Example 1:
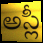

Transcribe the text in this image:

అస్లీ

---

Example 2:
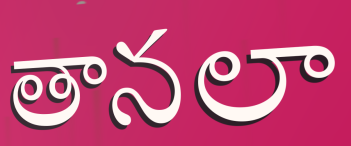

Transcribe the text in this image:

తానలా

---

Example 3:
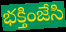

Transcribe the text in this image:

భక్తింజేసి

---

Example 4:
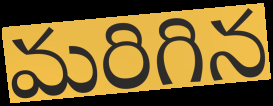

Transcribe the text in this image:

మరిగిన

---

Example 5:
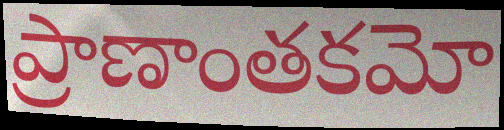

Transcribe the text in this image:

ప్రాణాంతకమో